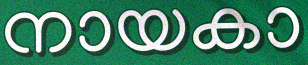
നായകാ